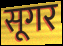
सूगर